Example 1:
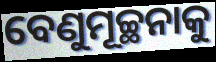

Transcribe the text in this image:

ବେଣୁମୂଚ୍ଛନାକୁ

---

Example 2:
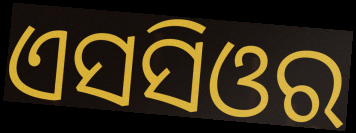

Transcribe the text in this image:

ଏସସିଓର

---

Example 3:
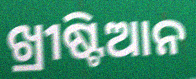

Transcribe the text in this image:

ଖ୍ରୀଷ୍ଟିଆନ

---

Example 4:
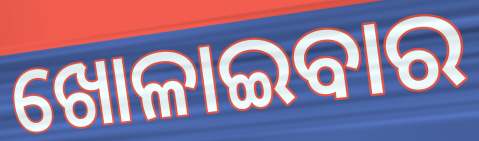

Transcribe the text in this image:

ଖୋଳାଇବାର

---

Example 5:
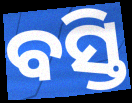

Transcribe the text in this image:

ବସ୍ତି